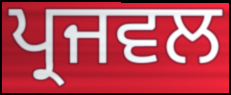
ਪ੍ਰਜਵਲ